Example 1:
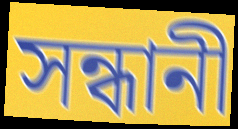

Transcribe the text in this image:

সন্ধানী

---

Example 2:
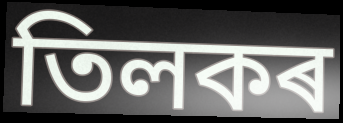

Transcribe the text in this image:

তিলকৰ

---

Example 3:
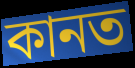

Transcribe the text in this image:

কানত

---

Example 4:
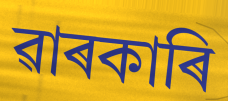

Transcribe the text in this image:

ৱাৰকাৰি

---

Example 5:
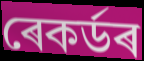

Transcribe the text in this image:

ৰেকৰ্ডৰ